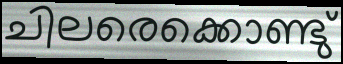
ചിലരെക്കൊണ്ടു്